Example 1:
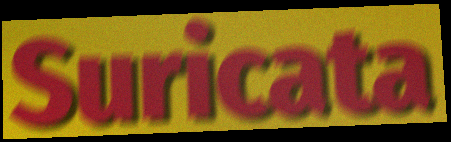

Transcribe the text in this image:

Suricata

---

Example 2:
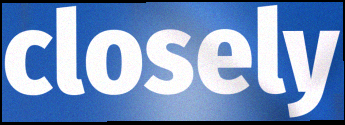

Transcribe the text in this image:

closely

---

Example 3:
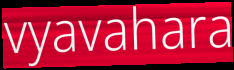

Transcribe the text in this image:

vyavahara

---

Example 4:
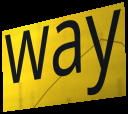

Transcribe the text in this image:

way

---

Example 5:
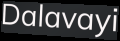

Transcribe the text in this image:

Dalavayi